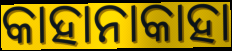
କାହାନାକାହା